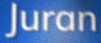
Juran